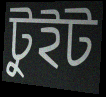
টুইট